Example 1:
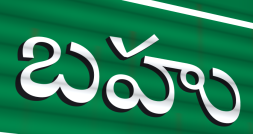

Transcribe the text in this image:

బహు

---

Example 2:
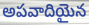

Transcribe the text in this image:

అపవాదియైన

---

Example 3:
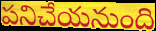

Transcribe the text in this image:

పనిచేయనుంది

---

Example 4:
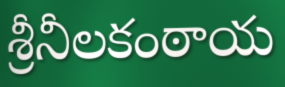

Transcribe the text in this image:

శ్రీనీలకంఠాయ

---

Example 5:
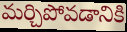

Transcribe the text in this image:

మర్చిపోవడానికి